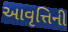
આવૃત્તિની